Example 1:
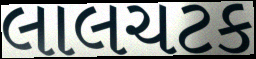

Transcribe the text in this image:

લાલચટક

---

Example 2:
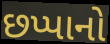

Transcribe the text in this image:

છપ્પાનો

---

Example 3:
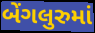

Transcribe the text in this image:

બેંગલુરુમાં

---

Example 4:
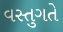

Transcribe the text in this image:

વસ્તુગતે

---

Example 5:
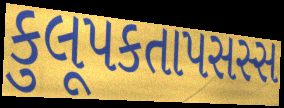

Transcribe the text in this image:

કુલૂપકતાપસસ્સ